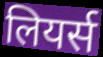
लियर्स